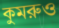
কুমরুও